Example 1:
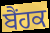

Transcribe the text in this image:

ਬੈਂਹਕ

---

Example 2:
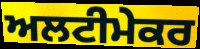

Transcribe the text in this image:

ਅਲਟੀਮੇਕਰ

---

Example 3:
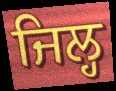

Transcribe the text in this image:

ਜਿਲ੍ਹ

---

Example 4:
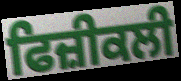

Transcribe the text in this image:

ਫਿਜ਼ੀਕਲੀ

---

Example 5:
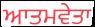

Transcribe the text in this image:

ਆਤਮਵੇਤਾ